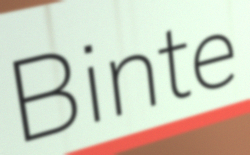
Binte